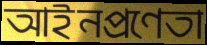
আইনপ্রণেতা